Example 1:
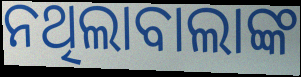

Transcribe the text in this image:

ନଥିଲାବାଲାଙ୍କ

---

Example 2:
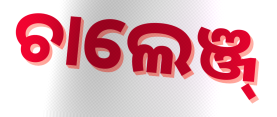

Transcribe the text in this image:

ଚାଲେଞ୍ଜ୍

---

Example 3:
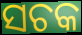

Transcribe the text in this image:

ସଚକ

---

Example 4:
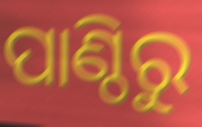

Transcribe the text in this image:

ପାଣ୍ଠିରୁ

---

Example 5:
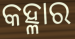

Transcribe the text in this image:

କହ୍ଳାର